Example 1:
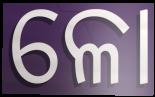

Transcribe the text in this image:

ଳୋ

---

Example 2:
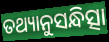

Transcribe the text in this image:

ତଥ୍ୟାନୁସନ୍ଧିତ୍ସା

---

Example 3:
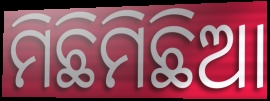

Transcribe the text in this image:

ମିଛିମିଛିଆ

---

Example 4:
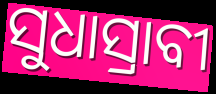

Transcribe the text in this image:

ସୁଧାସ୍ରାବୀ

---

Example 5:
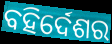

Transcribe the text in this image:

ବହିର୍ଦେଶର